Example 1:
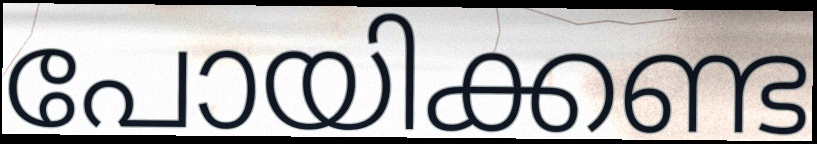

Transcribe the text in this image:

പോയിക്കണ്ട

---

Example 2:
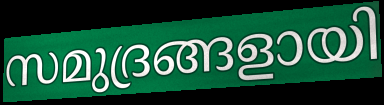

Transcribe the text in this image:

സമുദ്രങ്ങളായി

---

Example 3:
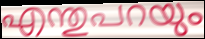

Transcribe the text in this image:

എന്തുപറയും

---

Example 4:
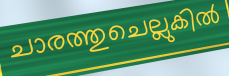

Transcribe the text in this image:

ചാരത്തുചെല്ലുകിൽ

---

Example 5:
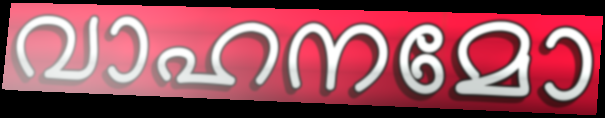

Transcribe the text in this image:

വാഹനമോ